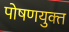
पोषणयुक्‍त